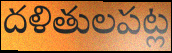
దళితులపట్ల